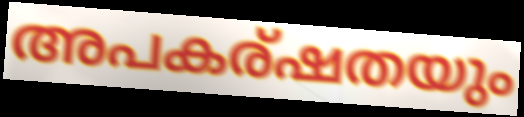
അപകര്ഷതയും